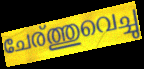
ചേര്ത്തുവെച്ചു